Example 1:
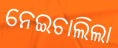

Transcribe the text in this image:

ନେଇଚାଲିଲା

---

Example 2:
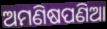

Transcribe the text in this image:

ଅମଣିଷପଣିଆ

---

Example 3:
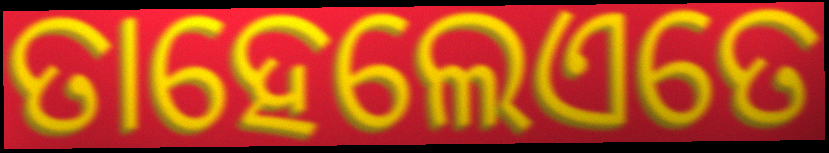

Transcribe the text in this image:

ତାହେଲେଏତେ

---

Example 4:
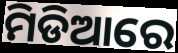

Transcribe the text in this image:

ମିଡିଆରେ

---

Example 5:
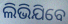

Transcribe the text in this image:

ଲିଭିଯିବେ